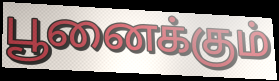
பூனைக்கும்